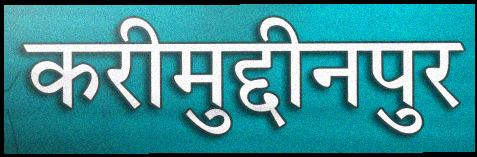
करीमुद्दीनपुर